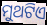
ମୁଥଟିଏ